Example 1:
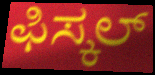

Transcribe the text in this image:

ಫಿಸ್ಕಲ್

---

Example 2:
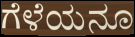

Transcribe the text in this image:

ಗೆಳೆಯನೂ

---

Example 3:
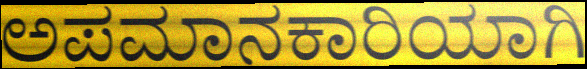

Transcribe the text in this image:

ಅಪಮಾನಕಾರಿಯಾಗಿ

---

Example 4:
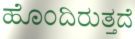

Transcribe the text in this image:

ಹೊಂದಿರುತ್ತದೆ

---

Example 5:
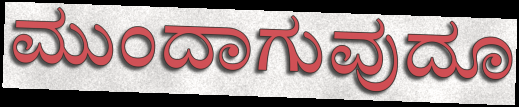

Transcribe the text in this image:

ಮುಂದಾಗುವುದೂ